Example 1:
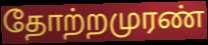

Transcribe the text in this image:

தோற்றமுரண்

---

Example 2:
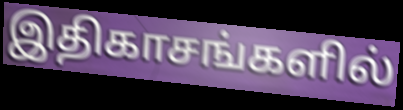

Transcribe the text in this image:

இதிகாசங்களில்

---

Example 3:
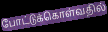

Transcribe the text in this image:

போட்டுக்கொள்வதில்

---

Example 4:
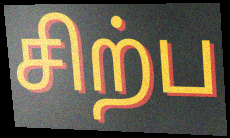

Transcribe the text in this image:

சிற்ப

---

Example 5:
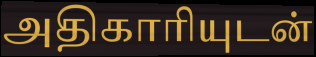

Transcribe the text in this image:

அதிகாரியுடன்